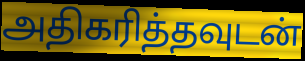
அதிகரித்தவுடன்